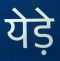
येड़े